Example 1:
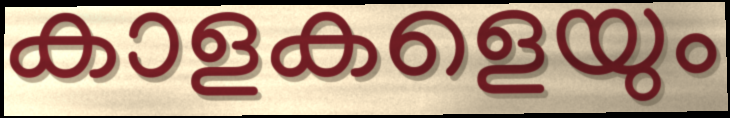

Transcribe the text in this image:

കാളകളെയും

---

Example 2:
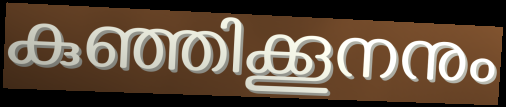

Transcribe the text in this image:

കുഞ്ഞിക്കൂനനും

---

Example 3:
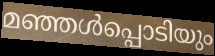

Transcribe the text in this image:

മഞ്ഞൾപ്പൊടിയും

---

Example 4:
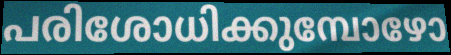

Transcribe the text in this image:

പരിശോധിക്കുമ്പോഴോ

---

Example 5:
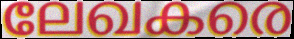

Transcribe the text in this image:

ലേഖകരെ